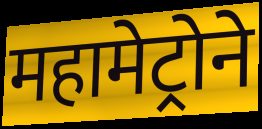
महामेट्रोने